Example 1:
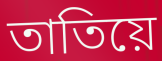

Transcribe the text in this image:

তাতিয়ে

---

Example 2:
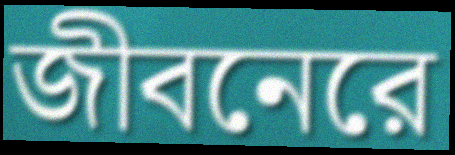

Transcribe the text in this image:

জীবনেরে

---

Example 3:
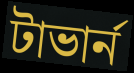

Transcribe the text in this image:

টাভার্ন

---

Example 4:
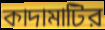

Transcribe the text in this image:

কাদামাটির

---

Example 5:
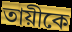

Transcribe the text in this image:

তায়ীকে